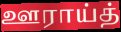
ஊராய்த்